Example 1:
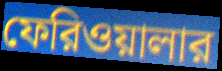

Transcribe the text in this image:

ফেরিওয়ালার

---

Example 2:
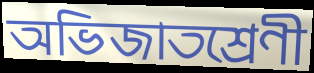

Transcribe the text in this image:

অভিজাতশ্রেণী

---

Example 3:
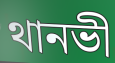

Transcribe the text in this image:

থানভী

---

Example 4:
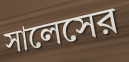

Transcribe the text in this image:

সালেসের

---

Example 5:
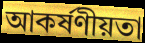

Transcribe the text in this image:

আকর্ষণীয়তা